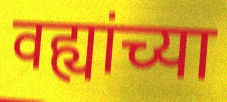
वह्यांच्या